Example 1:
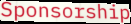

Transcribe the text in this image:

Sponsorship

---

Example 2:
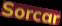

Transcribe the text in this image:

Sorcar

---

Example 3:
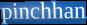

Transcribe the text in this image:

pinchhan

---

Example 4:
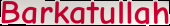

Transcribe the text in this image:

Barkatullah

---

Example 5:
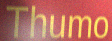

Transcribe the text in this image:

Thumo